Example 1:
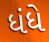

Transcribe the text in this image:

ધંધે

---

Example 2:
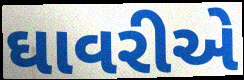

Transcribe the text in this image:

ઘાવરીએ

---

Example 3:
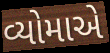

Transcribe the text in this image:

વ્યોમાએ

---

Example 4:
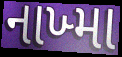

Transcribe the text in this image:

નાખ્મા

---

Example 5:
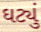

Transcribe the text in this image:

ઘટ્યું